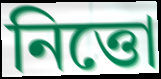
নিত্তো